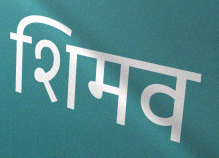
शिमव